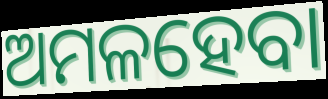
ଅମଳହେବା